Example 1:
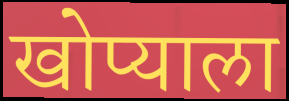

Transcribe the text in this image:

खोप्याला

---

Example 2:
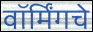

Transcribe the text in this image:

वॉर्मिंगचे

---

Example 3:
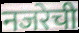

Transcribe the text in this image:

नजरेची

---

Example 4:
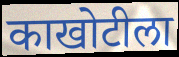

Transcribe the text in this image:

काखोटीला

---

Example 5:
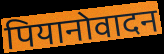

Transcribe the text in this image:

पियानोवादन